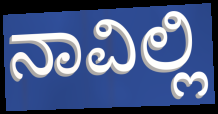
ನಾವಿಲ್ಲಿ